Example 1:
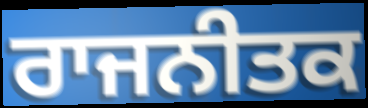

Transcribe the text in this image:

ਰਾਜਨੀਤਕ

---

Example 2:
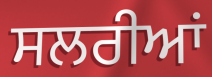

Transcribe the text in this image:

ਸਲਰੀਆਂ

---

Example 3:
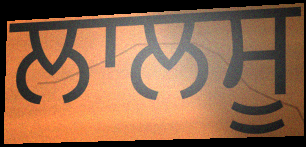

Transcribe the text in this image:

ਲਾਲਸੂ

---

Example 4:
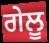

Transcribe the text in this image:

ਗੇਲੂ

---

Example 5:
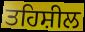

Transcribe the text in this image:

ਤਹਿਸ਼ੀਲ